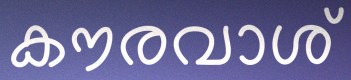
കൗരവാശ്